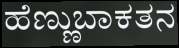
ಹೆಣ್ಣುಬಾಕತನ